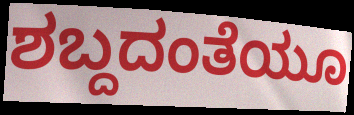
ಶಬ್ದದಂತೆಯೂ